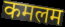
कमलम